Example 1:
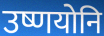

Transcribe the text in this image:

उष्णयोनि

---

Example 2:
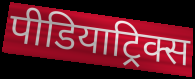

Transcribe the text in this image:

पीडियाट्रिक्स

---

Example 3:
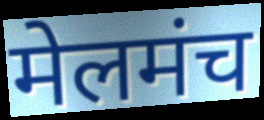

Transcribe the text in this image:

मेलमंच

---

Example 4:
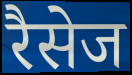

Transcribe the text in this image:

रैसेज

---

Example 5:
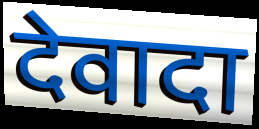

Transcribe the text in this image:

देवादा